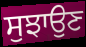
ਸੁਝਾਉਣ